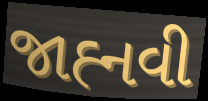
જાહ્‍નવી